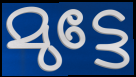
മുട്ടേ